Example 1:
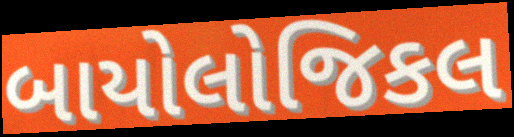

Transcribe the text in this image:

બાયોલોજિકલ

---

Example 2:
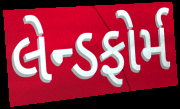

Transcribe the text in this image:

લેન્ડફોર્મ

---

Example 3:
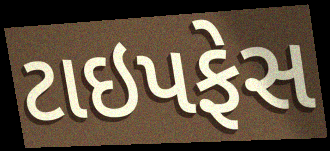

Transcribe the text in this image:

ટાઇપફેસ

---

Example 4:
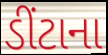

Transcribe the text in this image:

ડીંટાના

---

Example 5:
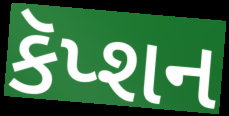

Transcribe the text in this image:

કૅપ્શન